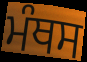
ਮੰਥਸ